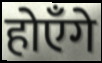
होएँगे